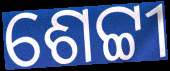
ଶେଟ୍ଟୀ